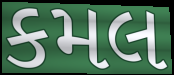
કમલ